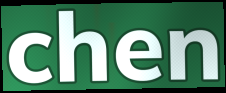
chen